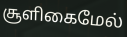
சூளிகைமேல்